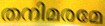
തനിമരമേ